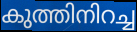
കുത്തിനിറച്ച